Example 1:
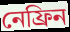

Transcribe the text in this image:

নেফ্রিন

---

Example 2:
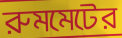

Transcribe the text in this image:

রুমমেটের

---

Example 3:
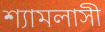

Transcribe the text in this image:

শ্যামলাসী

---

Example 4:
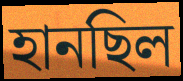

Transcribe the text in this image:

হানছিল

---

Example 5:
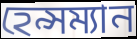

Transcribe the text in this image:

হেন্সম্যান